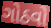
ગોઠવો